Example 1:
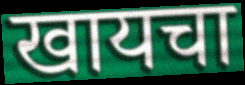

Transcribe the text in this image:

खायचा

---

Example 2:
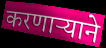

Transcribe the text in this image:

करणाऱ्याने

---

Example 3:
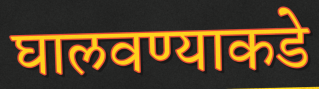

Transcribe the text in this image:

घालवण्याकडे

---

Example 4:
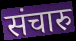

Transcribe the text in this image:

संचारु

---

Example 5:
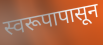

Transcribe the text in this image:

स्वरूपापासून